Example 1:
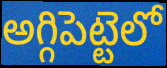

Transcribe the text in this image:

అగ్గిపెట్టెలో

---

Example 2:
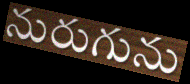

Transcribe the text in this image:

నురుగును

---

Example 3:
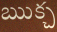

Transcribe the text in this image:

ఋక్చ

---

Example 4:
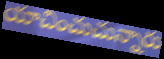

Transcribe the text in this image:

యాచించుచున్నారు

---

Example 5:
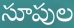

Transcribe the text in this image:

సూపుల